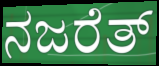
ನಜರೆತ್